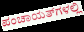
ಪಂಚಾಯತ್‌ಗಳಲ್ಲಿ